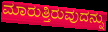
ಮಾರುತ್ತಿರುವುದನ್ನು